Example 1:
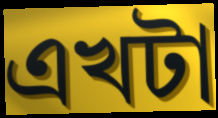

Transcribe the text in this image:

এখটা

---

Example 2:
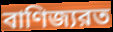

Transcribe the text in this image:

বাণিজ্যরত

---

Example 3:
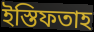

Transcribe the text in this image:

ইস্তিফতাহ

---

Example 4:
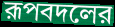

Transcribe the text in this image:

রূপবদলের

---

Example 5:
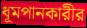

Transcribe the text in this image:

ধূমপানকারীর